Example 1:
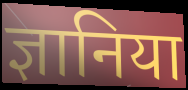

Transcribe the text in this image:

ज्ञानिया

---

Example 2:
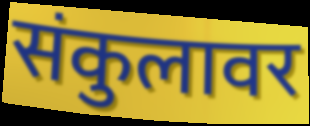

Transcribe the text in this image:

संकुलावर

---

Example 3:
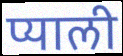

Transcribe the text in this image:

प्याली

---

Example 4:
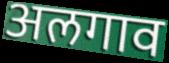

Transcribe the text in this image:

अलगाव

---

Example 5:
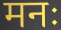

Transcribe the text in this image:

मनः